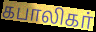
கபாலிகர்